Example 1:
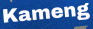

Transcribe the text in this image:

Kameng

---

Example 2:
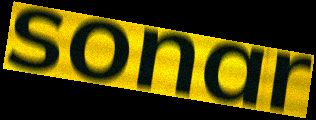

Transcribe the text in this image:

sonar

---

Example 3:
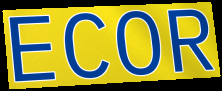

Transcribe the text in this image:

ECOR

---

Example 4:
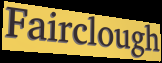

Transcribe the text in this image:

Fairclough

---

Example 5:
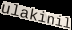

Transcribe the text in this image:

ulakinil